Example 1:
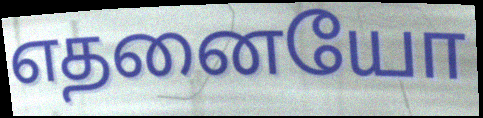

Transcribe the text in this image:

எதனையோ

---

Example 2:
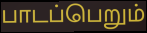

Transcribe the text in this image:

பாடப்பெறும்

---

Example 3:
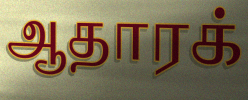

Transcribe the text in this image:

ஆதாரக்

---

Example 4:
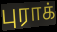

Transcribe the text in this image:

புராக்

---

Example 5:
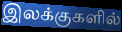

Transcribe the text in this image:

இலக்குகளில்